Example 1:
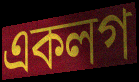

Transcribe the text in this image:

একলগ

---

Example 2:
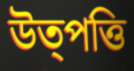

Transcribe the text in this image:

উত্পত্তি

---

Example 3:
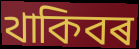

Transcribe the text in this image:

থাকিবৰ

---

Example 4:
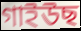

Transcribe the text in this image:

গাইউছ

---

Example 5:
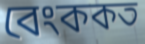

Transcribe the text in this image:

বেংককত